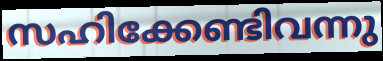
സഹിക്കേണ്ടിവന്നു